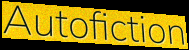
Autofiction